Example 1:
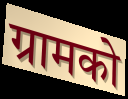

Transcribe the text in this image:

ग्रामको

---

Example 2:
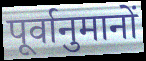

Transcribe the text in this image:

पूर्वानुमानों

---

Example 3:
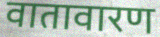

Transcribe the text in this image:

वातावारण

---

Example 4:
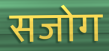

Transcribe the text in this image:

सजोग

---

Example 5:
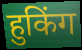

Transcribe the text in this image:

हुकिंग